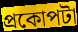
প্রকোপটা